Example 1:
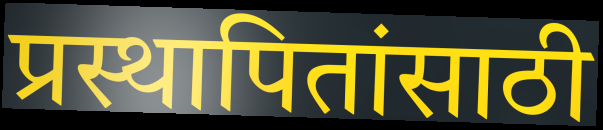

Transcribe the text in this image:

प्रस्थापितांसाठी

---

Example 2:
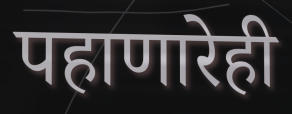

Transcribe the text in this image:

पहाणारेही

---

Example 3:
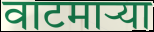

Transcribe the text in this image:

वाटमाऱ्या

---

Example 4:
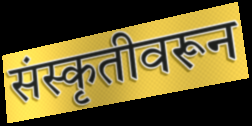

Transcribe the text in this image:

संस्कृतीवरून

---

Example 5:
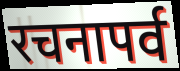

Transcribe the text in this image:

रचनापर्व